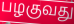
பழகுவது